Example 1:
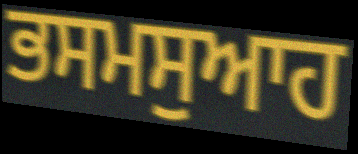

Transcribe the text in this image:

ਭਸਮਸੁਆਹ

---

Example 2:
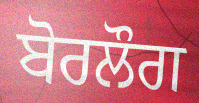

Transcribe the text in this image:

ਬੋਰਲੌਗ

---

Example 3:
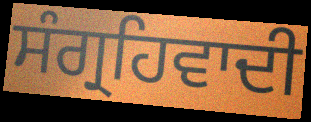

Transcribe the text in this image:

ਸੰਗ੍ਰਹਿਵਾਦੀ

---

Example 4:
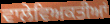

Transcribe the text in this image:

ਵਾਲੇਵਿਅਕਤੀਆਂ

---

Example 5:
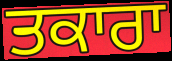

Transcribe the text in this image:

ਤਕਾਰਾ